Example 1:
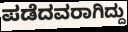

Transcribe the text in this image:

ಪಡೆದವರಾಗಿದ್ದು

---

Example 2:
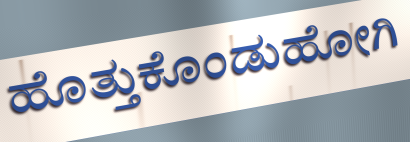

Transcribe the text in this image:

ಹೊತ್ತುಕೊಂಡುಹೋಗಿ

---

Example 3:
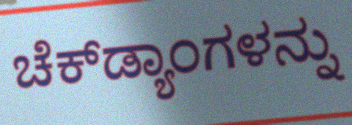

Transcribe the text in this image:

ಚೆಕ್‌ಡ್ಯಾಂಗಳನ್ನು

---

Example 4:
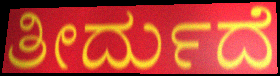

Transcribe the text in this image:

ತೀರ್ದುದೆ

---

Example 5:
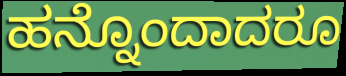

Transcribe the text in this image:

ಹನ್ನೊಂದಾದರೂ